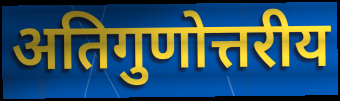
अतिगुणोत्तरीय